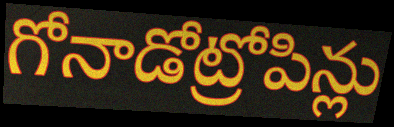
గోనాడోట్రోపిన్లు